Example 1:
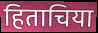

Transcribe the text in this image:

हिताचिया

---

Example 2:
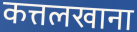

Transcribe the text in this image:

कत्तलखाना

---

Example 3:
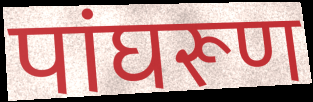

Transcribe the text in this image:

पांघरूण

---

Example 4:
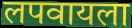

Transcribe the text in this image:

लपवायला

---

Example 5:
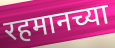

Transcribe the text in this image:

रहमानच्या